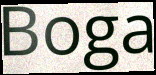
Boga